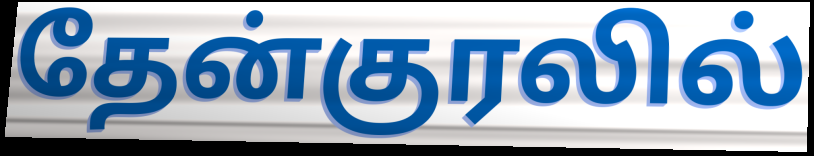
தேன்குரலில்